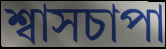
শ্বাসচাপা